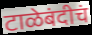
टाळेबंदीचं